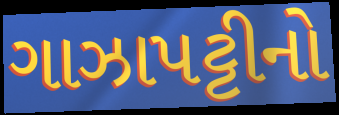
ગાઝાપટ્ટીનો